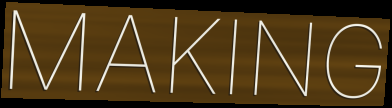
MAKING